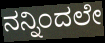
ನನ್ನಿಂದಲೇ